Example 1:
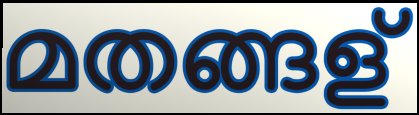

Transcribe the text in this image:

മതങ്ങള്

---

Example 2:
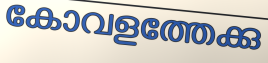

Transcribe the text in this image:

കോവളത്തേക്കു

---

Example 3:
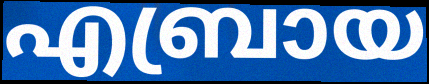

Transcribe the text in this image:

എബ്രായ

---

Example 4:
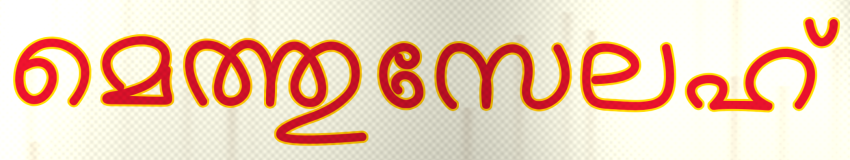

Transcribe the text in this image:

മെത്തുസേലഹ്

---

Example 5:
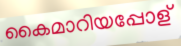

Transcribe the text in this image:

കൈമാറിയപ്പോള്